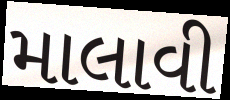
માલાવી